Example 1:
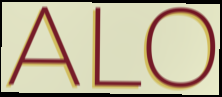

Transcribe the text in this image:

ALO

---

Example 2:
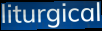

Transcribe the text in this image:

liturgical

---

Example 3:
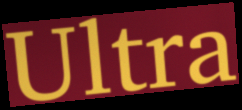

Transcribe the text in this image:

Ultra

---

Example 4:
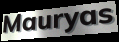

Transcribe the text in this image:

Mauryas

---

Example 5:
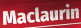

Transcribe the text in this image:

Maclaurin